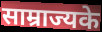
साम्राज्यके